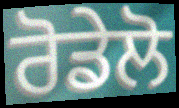
ਰੋਡੇਲੋ